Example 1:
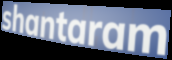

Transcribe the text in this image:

shantaram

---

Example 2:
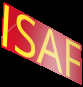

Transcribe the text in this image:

ISAF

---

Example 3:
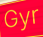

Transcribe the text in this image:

Gyr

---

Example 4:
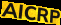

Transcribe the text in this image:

AICRP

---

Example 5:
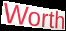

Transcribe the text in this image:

Worth